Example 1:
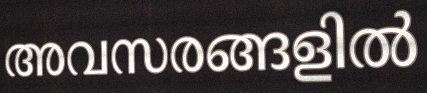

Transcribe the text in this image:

അവസരങ്ങളിൽ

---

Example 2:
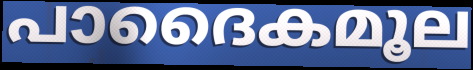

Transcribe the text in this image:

പാദൈകമൂല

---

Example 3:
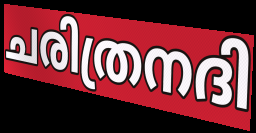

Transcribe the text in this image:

ചരിത്രനദി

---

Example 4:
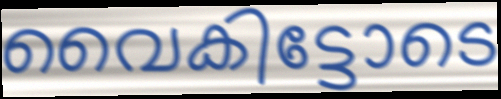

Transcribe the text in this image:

വൈകിട്ടോടെ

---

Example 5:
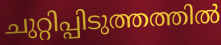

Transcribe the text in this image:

ചുറ്റിപ്പിടുത്തത്തിൽ